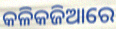
କଳିକଜିଆରେ